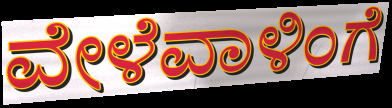
ವೇಳೆವಾಳಿಂಗೆ